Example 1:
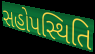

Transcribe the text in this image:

સહોપસ્થિતિ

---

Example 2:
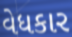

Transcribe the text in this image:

વેધકાર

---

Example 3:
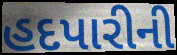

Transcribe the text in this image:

હદપારીની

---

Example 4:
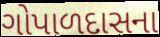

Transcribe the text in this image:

ગોપાળદાસના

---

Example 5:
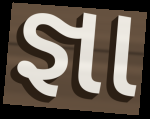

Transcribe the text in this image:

જ્ઞા